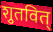
श्रुतवित्